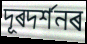
দূৰদৰ্শনৰ